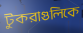
টুকরাগুলিকে